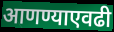
आणण्याएवढी